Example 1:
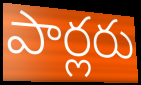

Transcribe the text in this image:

పార్లరు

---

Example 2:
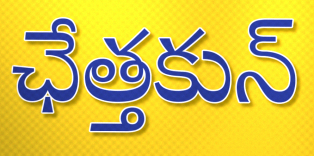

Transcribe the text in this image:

ఛేత్తకున్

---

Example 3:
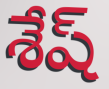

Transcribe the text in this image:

శేష్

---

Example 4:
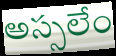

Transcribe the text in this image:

అస్సలేం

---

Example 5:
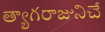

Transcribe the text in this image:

త్యాగరాజునిచే